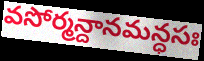
వసోర్మన్దానమన్ధసః